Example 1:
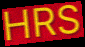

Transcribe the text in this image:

HRS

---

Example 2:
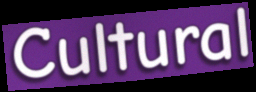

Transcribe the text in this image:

Cultural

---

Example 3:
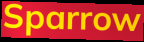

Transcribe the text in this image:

Sparrow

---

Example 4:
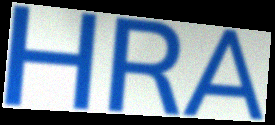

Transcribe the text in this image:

HRA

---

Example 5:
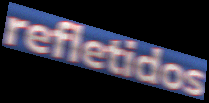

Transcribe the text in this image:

refletidos